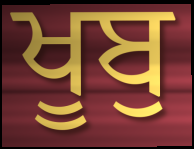
ਖੂਬੁ